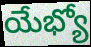
యేభ్యో